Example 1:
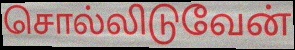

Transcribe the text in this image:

சொல்லிடுவேன்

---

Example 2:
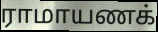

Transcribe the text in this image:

ராமாயணக்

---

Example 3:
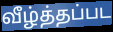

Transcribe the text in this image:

வீழ்த்தப்பட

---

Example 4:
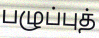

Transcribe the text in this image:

பழுப்புத்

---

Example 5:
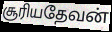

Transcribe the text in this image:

சூரியதேவன்